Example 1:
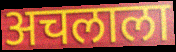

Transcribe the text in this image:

अचलाला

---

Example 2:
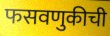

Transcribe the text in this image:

फसवणुकीची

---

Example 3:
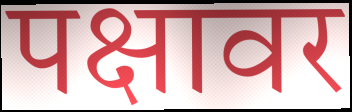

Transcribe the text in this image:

पक्षावर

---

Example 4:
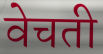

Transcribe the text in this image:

वेचती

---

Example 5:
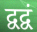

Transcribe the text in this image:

द्वद्वं